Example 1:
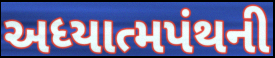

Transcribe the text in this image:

અધ્યાત્મપંથની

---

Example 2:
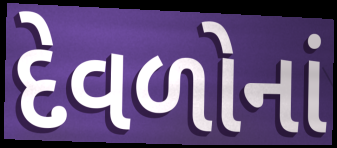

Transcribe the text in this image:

દેવળોનાં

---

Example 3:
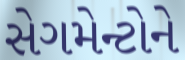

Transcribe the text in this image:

સેગમેન્ટોને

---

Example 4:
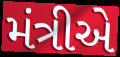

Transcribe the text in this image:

મંત્રીએ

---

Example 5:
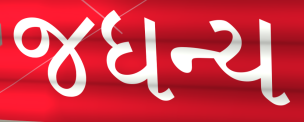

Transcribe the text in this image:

જધન્ય